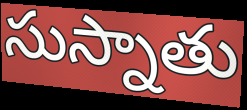
సుస్నాతు